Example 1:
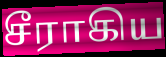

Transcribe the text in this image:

சீராகிய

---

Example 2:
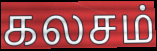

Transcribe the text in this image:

கலசம்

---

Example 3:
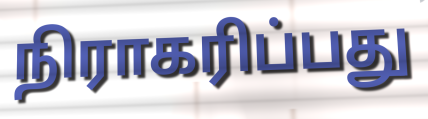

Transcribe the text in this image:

நிராகரிப்பது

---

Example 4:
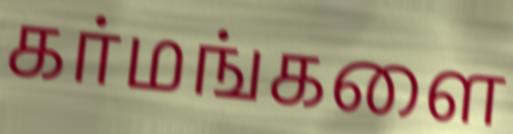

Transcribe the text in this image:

கர்மங்களை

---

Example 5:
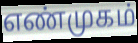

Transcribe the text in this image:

எண்முகம்